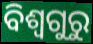
ବିଶ୍ୱଗୁରୁ